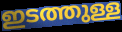
ഇടത്തുള്ള